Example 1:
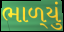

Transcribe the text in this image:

ભાળ્‌યું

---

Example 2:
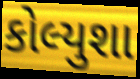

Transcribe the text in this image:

કોલ્યુશા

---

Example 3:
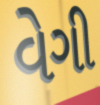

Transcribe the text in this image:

વેગી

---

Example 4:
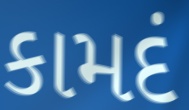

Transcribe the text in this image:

કામદં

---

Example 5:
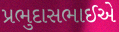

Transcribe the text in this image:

પ્રભુદાસભાઈએ